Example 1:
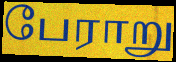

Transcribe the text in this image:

பேராறு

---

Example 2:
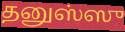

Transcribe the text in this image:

தனுஸ்ஸு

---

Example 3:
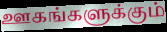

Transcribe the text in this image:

ஊகங்களுக்கும்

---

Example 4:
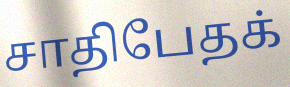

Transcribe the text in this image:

சாதிபேதக்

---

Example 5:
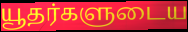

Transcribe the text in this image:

யூதர்களுடைய